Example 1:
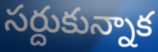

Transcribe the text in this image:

సర్దుకున్నాక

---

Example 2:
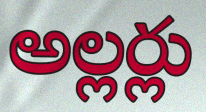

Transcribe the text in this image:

అల్లర్లు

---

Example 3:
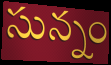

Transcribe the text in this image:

సున్నం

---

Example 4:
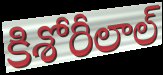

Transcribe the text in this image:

కిశోరీలాల్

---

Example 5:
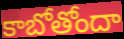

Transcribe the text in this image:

కాబోతోందా